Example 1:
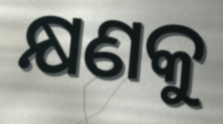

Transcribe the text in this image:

କ୍ଷଣକୁ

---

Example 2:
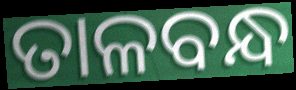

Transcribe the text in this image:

ତାଳବନ୍ଧ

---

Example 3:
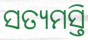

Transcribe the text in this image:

ସତ୍ୟମସ୍ତି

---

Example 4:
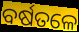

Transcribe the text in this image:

ବର୍ଷତଳେ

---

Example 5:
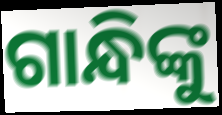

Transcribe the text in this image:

ଗାନ୍ଧିଙ୍କୁ